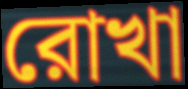
রোখা